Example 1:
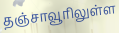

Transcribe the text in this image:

தஞ்சாவூரிலுள்ள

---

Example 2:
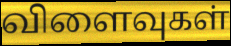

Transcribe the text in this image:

விளைவுகள்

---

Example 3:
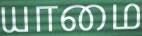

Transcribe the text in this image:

யாமை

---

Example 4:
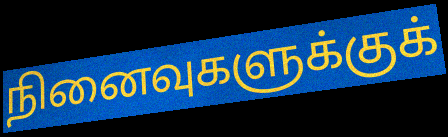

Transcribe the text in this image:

நினைவுகளுக்குக்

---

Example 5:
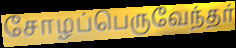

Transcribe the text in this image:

சோழப்பெருவேந்தர்